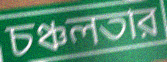
চঞ্চলতার